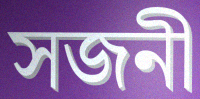
সজনী